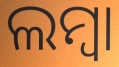
ଲମ୍ୱା